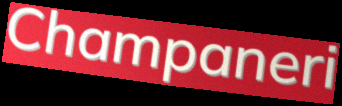
Champaneri